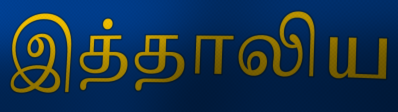
இத்தாலிய